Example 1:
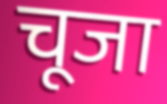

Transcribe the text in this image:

चूजा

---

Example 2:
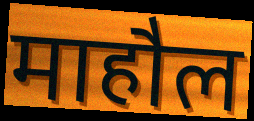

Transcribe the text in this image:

माहौल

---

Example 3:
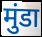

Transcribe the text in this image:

मुंडा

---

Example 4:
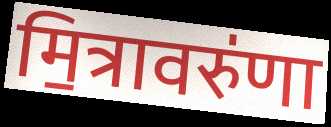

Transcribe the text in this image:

मि॒त्रावरु॑णा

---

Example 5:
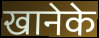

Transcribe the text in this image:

खानेके